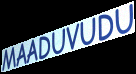
MAADUVUDU